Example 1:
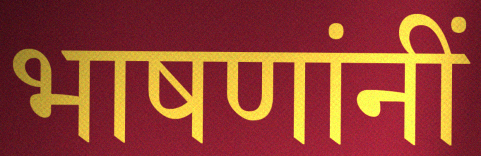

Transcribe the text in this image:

भाषणांनीं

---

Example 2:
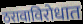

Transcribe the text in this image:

ठरावाविरोधात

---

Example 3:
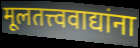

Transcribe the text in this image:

मूलतत्त्ववाद्यांना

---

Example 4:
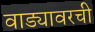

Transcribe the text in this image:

वाड्यावरची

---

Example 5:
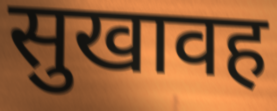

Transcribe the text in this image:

सुखावह